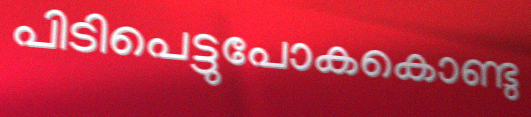
പിടിപെട്ടുപോകകൊണ്ടു